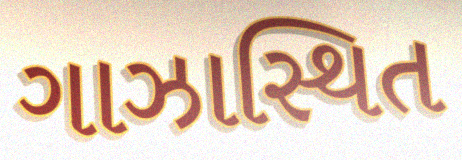
ગાઝાસ્થિત